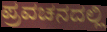
ಪ್ರವಚನದಲ್ಲಿ